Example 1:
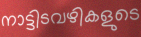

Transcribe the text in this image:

നാട്ടിടവഴികളുടെ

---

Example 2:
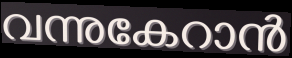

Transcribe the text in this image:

വന്നുകേറാൻ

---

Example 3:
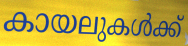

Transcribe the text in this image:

കായലുകൾക്ക്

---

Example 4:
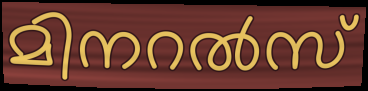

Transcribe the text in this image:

മിനറൽസ്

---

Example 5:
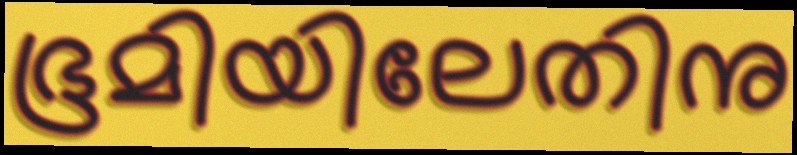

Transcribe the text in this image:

ഭൂമിയിലേതിനു